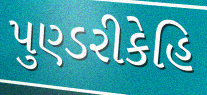
પુણ્ડરીકેહિ